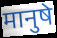
मानुषे